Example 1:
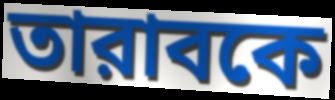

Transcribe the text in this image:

তারাবকে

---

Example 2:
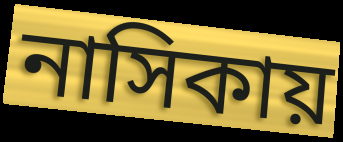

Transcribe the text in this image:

নাসিকায়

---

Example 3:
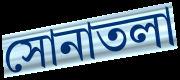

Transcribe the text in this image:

সোনাতলা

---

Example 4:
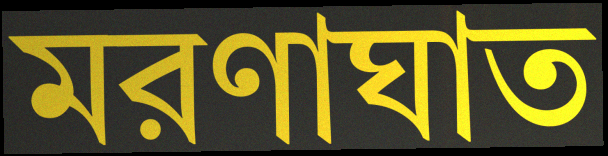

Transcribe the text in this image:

মরণাঘাত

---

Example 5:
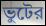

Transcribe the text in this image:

ভুটের